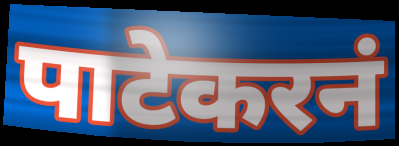
पाटेकरनं